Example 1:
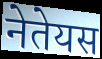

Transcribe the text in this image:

नेतेयस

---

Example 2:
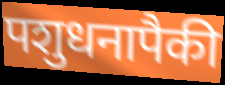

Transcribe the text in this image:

पशुधनापैकी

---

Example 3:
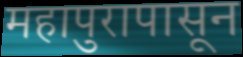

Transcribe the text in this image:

महापुरापासून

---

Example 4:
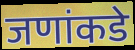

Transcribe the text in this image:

जणांकडे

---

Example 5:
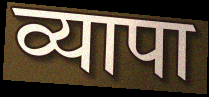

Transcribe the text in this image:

व्यापा